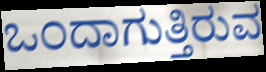
ಒಂದಾಗುತ್ತಿರುವ